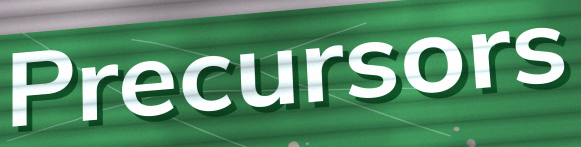
Precursors